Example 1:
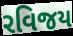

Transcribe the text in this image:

રવિજય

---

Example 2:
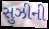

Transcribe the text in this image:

સુઝીની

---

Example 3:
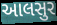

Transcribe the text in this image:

આલસુર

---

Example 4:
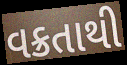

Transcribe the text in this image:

વક્રતાથી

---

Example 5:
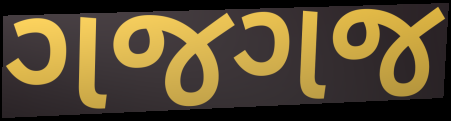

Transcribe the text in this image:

ગજગજ